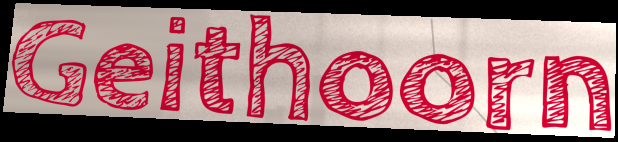
Geithoorn